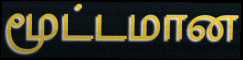
மூட்டமான